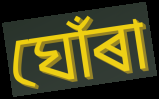
ঘোঁৰা